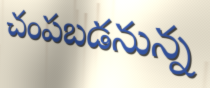
చంపబడనున్న